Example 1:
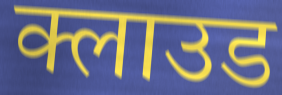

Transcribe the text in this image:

क्‍लाउड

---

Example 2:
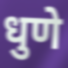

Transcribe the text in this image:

धुणे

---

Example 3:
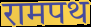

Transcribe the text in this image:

रामपथ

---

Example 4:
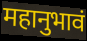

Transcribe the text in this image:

महानुभावं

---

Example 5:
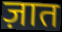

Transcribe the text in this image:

ज़ात